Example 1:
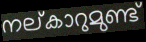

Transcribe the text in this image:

നല്കാറുമുണ്ട്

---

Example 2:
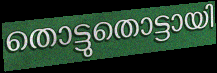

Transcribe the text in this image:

തൊട്ടുതൊട്ടായി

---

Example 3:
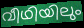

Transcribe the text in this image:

വീഥിയിലും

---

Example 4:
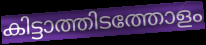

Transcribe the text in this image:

കിട്ടാത്തിടത്തോളം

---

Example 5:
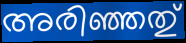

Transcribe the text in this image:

അരിഞ്ഞതു്